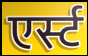
एर्स्ट